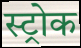
स्‍ट्रोक